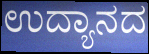
ಉದ್ಯಾನದ